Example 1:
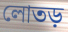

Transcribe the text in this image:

লোতড়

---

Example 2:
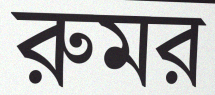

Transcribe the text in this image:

রুমর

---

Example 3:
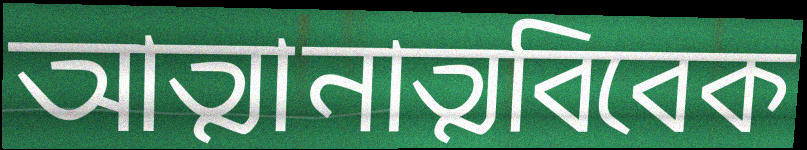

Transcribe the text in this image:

আত্মানাত্মবিবেক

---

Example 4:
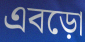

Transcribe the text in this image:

এবড়ো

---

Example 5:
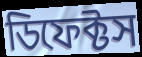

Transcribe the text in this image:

ডিফেক্টস